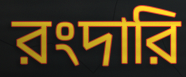
রংদারি